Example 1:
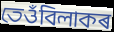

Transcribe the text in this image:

তেওঁবিলাকৰ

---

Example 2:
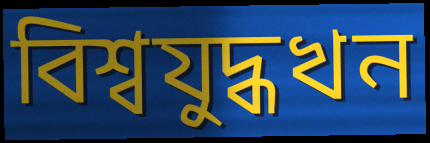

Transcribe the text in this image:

বিশ্বযুদ্ধখন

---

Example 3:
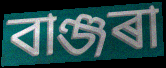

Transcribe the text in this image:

বাঞ্জৰা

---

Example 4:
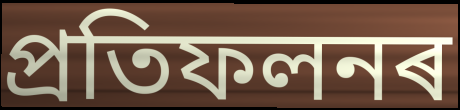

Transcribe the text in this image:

প্ৰতিফলনৰ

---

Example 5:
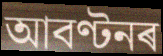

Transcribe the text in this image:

আবণ্টনৰ